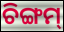
ଚିଙ୍ଗମ୍